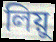
লিয়ু